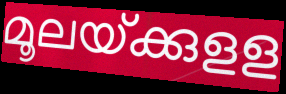
മൂലയ്‌ക്കുളള